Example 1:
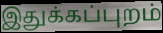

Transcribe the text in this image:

இதுக்கப்புறம்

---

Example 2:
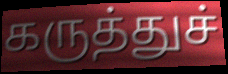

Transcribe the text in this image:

கருத்துச்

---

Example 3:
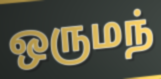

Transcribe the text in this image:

ஒருமந்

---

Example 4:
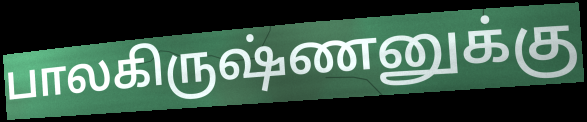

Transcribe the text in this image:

பாலகிருஷ்ணனுக்கு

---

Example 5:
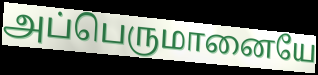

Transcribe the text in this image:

அப்பெருமானையே